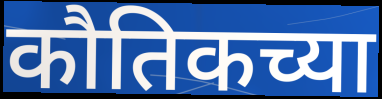
कौतिकच्या